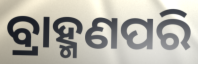
ବ୍ରାହ୍ମଣପରି